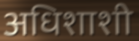
अधिशाशी